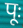
पूः